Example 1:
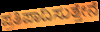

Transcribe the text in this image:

ಪ್ರತಿಪಾದಿಸುತ್ತೇನೆ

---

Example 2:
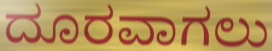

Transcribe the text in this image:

ದೂರವಾಗಲು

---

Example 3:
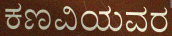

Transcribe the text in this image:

ಕಣವಿಯವರ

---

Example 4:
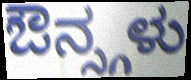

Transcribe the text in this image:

ಔನ್ಸ್ಗಳು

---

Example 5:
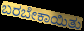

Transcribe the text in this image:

ಬರಬೇಕಾಯಿತು